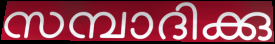
സമ്പാദിക്കു